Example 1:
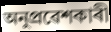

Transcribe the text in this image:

অনুপ্ৰৱেশকাৰী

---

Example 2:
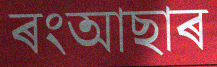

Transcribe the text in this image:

ৰংআছাৰ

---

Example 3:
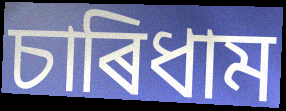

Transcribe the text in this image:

চাৰিধাম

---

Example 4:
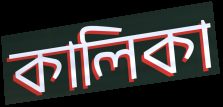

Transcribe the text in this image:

কালিকা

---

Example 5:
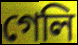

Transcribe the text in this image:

গেলি